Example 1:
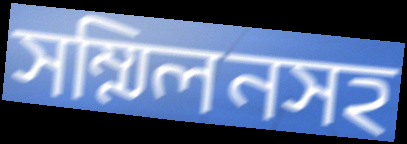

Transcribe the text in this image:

সম্মিলনসহ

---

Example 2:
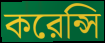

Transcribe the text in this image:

করেন্সি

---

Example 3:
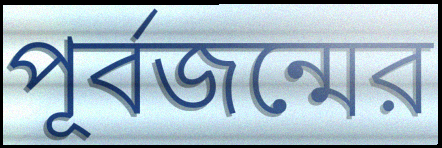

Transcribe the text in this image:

পূর্বজন্মের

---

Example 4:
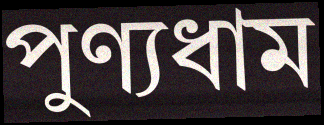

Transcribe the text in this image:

পুণ্যধাম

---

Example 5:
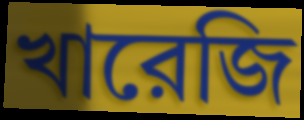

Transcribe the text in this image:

খারেজি